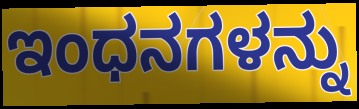
ಇಂಧನಗಳನ್ನು